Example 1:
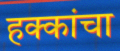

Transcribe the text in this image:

हक्कांचा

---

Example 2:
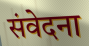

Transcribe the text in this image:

संवेदना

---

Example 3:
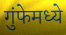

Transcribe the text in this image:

गुंफेमध्ये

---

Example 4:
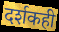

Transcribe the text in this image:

दर्शकही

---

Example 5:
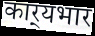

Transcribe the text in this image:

कार्यभार